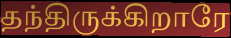
தந்திருக்கிறாரே